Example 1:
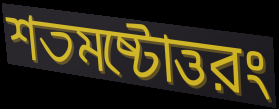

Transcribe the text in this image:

শতমষ্টোত্তরং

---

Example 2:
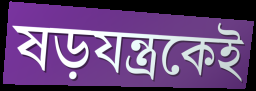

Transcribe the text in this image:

ষড়যন্ত্রকেই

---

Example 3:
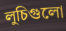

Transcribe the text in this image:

লুচিগুলো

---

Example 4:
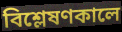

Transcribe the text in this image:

বিশ্লেষণকালে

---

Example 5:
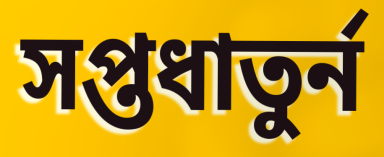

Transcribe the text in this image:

সপ্তধাতুর্ন